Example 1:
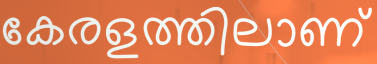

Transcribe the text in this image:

കേരളത്തിലാണ്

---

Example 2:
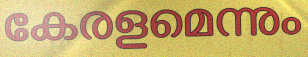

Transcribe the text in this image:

കേരളമെന്നും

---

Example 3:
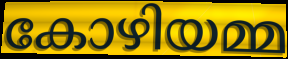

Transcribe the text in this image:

കോഴിയമ്മ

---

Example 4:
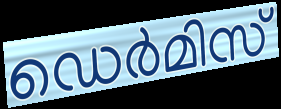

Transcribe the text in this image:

ഡെർമിസ്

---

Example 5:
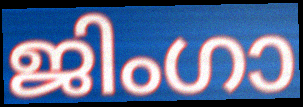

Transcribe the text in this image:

ജിംഗാ